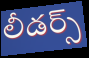
లీడర్స్